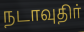
நடாவுதிர்